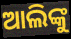
ଆଲିଙ୍କୁ